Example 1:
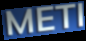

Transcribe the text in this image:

METI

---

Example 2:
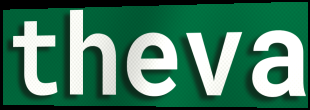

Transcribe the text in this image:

theva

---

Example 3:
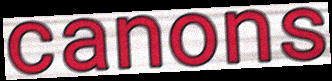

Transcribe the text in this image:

canons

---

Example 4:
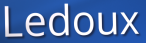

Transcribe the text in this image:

Ledoux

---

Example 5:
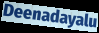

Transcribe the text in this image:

Deenadayalu